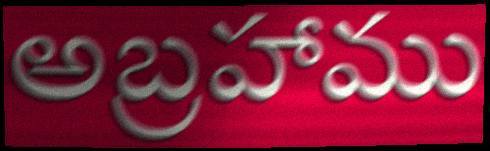
అబ్రహాము